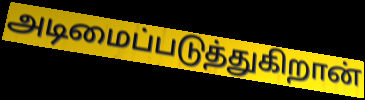
அடிமைப்படுத்துகிறான்